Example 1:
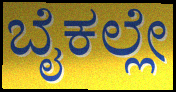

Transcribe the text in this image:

ಬೈಕಲ್ಲೇ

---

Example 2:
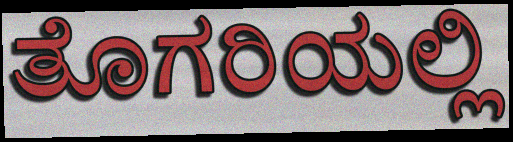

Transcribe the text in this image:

ತೊಗರಿಯಲ್ಲಿ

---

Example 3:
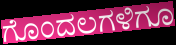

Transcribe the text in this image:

ಗೊಂದಲಗಳಿಗೂ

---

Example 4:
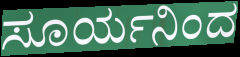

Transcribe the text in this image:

ಸೂರ್ಯನಿಂದ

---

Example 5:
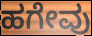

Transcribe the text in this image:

ಹಗೇವು